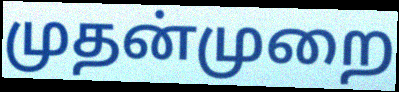
முதன்முறை